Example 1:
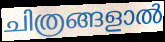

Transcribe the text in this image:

ചിത്രങ്ങളാൽ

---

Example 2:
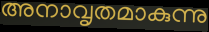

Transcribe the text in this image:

അനാവൃതമാകുന്നു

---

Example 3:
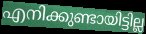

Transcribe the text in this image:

എനിക്കുണ്ടായിട്ടില്ല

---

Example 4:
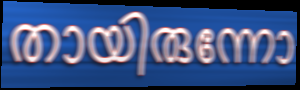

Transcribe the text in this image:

തായിരുന്നോ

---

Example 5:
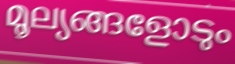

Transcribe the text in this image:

മൂല്യങ്ങളോടും